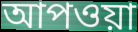
আপওয়া